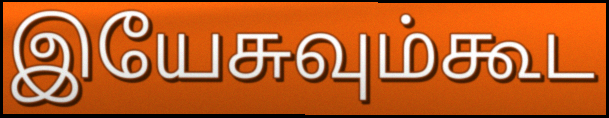
இயேசுவும்கூட